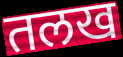
तलख